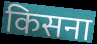
किसना